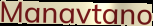
Manavtano